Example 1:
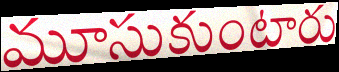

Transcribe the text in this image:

మూసుకుంటారు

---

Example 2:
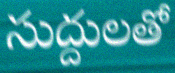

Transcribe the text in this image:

సుద్దులతో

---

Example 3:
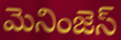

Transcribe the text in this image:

మెనింజెస్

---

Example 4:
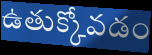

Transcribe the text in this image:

ఉతుక్కోవడం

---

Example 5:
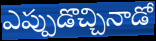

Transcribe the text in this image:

ఎప్పుడొచ్చినాడో